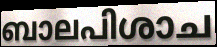
ബാലപിശാച